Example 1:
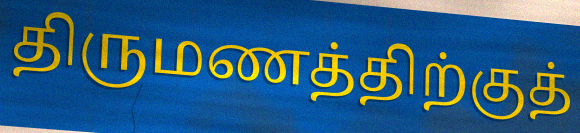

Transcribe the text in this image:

திருமணத்திற்குத்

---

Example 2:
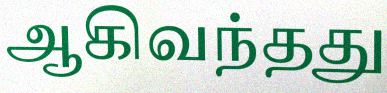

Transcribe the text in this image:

ஆகிவந்தது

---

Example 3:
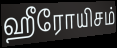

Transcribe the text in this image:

ஹீரோயிசம்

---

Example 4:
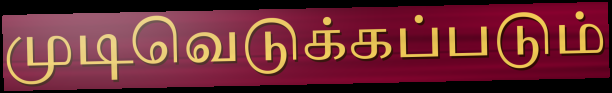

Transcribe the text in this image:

முடிவெடுக்கப்படும்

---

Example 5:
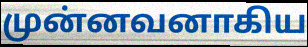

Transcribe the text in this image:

முன்னவனாகிய